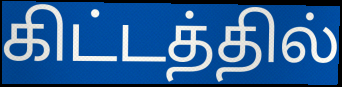
கிட்டத்தில்